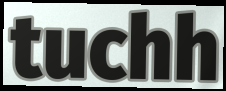
tuchh